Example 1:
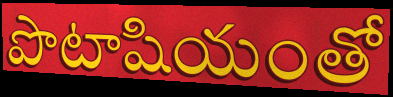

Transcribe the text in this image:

పొటాషియంతో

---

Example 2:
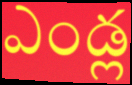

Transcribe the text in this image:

ఎండ్ల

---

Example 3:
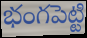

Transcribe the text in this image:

భంగపెట్టి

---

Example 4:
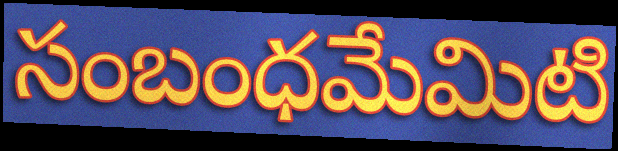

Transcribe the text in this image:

సంబంధమేమిటి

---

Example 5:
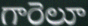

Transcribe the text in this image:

గారెలూ